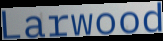
Larwood